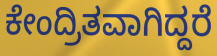
ಕೇಂದ್ರಿತವಾಗಿದ್ದರೆ